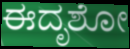
ಈದೃಶೋ